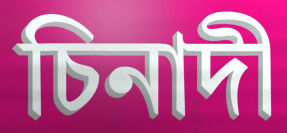
চিনাদী